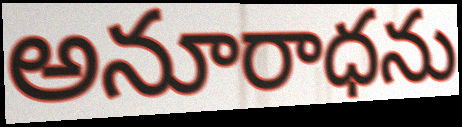
అనూరాధను